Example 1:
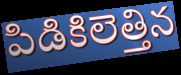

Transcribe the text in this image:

పిడికిలెత్తిన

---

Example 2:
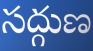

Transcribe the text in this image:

సద్గుణ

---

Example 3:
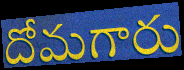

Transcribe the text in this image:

దోమగారు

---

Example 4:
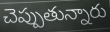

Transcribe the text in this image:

చెప్పుతున్నారు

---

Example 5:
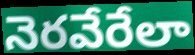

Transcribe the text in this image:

నెరవేరేలా